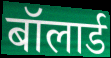
बॉलार्ड